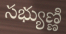
సభ్యుణ్ణి